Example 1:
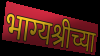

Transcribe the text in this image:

भाग्यश्रीच्या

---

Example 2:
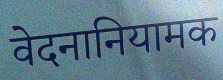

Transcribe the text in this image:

वेदनानियामक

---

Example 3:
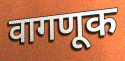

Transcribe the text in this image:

वागणूक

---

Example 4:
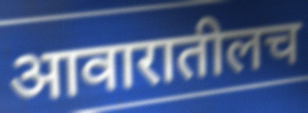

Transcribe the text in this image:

आवारातीलच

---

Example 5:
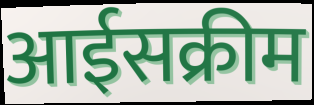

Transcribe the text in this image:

आईसक्रीम